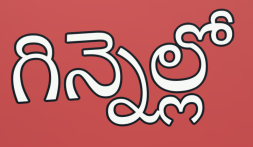
గిన్నెల్లో